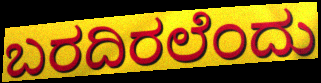
ಬರದಿರಲೆಂದು